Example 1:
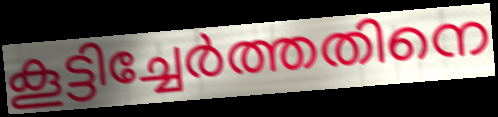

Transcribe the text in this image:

കൂട്ടിച്ചേർത്തതിനെ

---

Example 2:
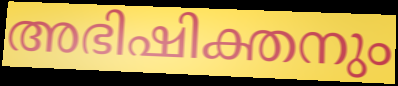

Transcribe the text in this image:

അഭിഷിക്തനും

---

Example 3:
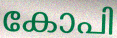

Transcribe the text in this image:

കോപി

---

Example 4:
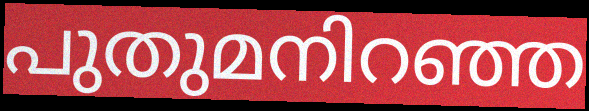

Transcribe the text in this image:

പുതുമനിറഞ്ഞ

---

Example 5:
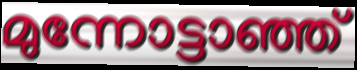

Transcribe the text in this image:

മുന്നോട്ടാഞ്ഞ്